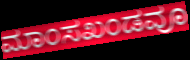
ಮಾಂಸಖಂಡವೂ